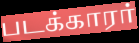
படக்காரர்